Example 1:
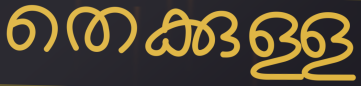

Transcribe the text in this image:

തെക്കുള്ള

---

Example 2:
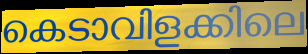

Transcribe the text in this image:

കെടാവിളക്കിലെ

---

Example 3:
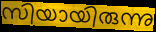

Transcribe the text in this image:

സിയായിരുന്നു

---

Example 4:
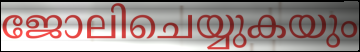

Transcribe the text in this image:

ജോലിചെയ്യുകയും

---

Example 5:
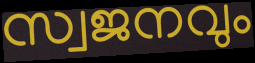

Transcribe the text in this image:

സ്വജനവും